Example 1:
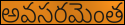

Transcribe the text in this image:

అవసరమెంత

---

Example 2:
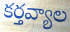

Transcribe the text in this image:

కర్తవ్యాల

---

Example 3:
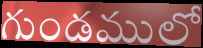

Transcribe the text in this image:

గుండములో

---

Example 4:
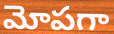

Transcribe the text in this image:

మోపగా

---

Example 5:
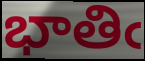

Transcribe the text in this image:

భాతిఁ